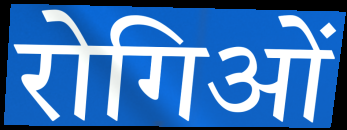
रोगिओं